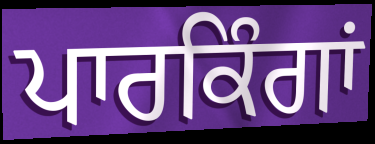
ਪਾਰਕਿੰਗਾਂ